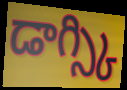
డాగ్స్కి